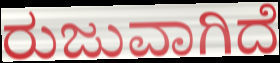
ರುಜುವಾಗಿದೆ